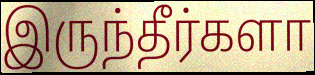
இருந்தீர்களா